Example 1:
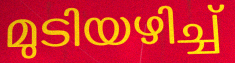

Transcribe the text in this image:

മുടിയഴിച്ച്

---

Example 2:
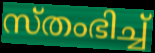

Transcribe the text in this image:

സ്തംഭിച്ച്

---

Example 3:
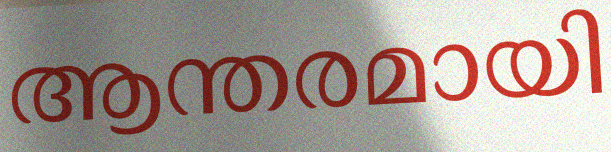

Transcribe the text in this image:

ആന്തരമായി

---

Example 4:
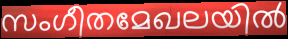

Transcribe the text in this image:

സംഗീതമേഖലയിൽ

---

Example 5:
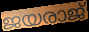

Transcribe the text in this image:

ജയരാജ്